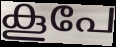
കൂപേ